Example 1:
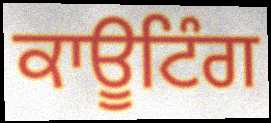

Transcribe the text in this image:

ਕਾਊਟਿੰਗ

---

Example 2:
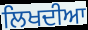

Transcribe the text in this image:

ਲਿਖਦੀਆ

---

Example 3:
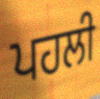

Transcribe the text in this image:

ਪਹਲੀ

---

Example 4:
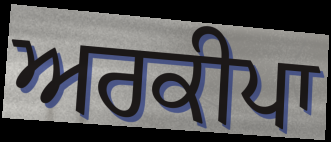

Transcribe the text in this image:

ਅਰਕੀਪਾ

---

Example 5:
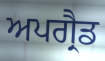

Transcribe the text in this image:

ਅਪਗ੍ਰੈਡ